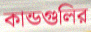
কান্ডগুলির